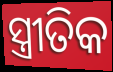
ସ୍ତ୍ରୀତିକ